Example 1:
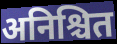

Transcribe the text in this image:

अनिश्चित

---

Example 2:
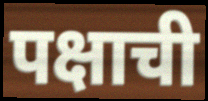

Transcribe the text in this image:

पक्षाची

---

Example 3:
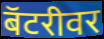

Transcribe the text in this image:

बॅटरीवर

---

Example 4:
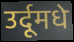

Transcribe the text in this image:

उर्दूमधे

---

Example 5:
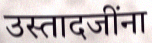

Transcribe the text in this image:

उस्तादजींना